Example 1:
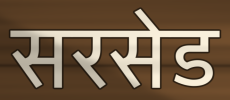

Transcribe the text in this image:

सरसेड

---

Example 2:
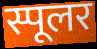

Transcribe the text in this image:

स्पूलर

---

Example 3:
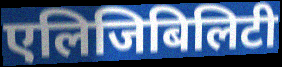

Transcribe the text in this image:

एलिजिबिलिटी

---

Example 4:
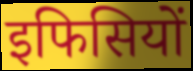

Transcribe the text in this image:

इफिसियों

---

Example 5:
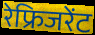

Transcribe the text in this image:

रेफ्रिजरेंट